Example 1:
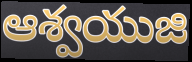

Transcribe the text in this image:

ఆశ్వయుజి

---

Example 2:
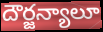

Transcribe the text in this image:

దౌర్జన్యాలూ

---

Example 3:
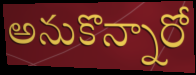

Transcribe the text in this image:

అనుకొన్నారో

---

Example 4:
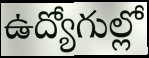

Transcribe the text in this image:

ఉద్యోగుల్లో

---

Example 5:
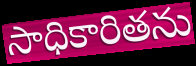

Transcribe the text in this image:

సాధికారితను